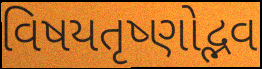
વિષયતૃષ્ણોદ્ભવ